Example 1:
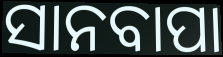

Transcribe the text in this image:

ସାନବାପା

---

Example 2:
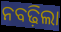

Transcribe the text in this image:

ନବଢ଼ିଲା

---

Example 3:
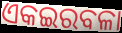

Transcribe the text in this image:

ଏକଇରବଳା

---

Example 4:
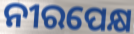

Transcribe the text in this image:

ନୀରପେକ୍ଷ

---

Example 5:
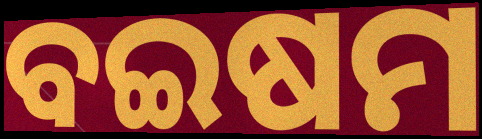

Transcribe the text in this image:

ବଇଷମ